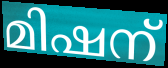
മിഷന്